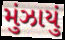
મુંઝાયું